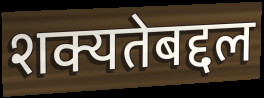
शक्यतेबद्दल